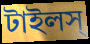
টাইলস্